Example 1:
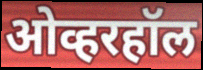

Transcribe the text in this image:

ओव्हरहॉल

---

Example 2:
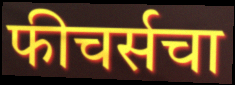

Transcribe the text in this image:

फीचर्सचा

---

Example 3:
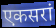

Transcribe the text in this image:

एकसरां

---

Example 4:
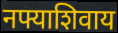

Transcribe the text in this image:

नफ्याशिवाय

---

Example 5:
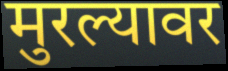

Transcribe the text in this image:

मुरल्यावर